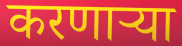
करणार्‍या